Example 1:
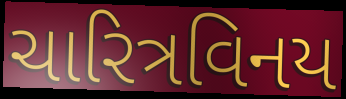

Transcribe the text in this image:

ચારિત્રવિનય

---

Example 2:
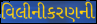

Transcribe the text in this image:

વિલીનીકરણની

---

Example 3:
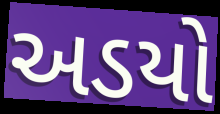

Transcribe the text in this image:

અડયો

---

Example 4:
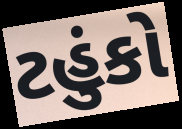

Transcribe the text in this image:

ટહુંકો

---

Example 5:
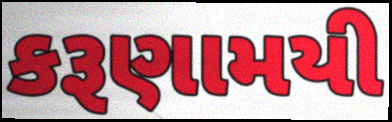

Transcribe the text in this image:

કરૂણામયી